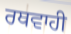
ਰਥਵਾਹੀ